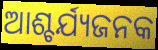
ଆଶ୍ଚର୍ଯ୍ୟଜନକ